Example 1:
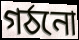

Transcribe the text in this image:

গঠনো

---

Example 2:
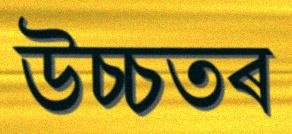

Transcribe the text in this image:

উচ্চতৰ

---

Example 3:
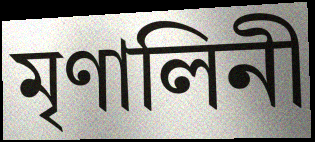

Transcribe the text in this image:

মৃণালিনী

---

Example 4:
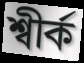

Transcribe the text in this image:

শ্বীৰ্ক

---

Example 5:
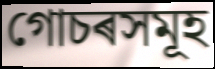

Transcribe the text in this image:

গোচৰসমূহ